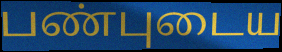
பண்புடைய